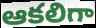
ఆకలిగా